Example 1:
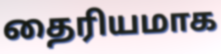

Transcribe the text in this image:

தைரியமாக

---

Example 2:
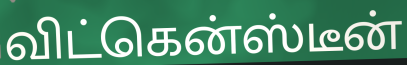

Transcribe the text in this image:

விட்கென்ஸ்டீன்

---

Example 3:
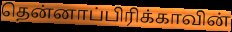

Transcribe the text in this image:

தென்னாப்பிரிக்காவின்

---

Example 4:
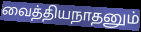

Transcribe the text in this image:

வைத்தியநாதனும்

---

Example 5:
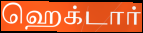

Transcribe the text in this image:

ஹெக்டார்